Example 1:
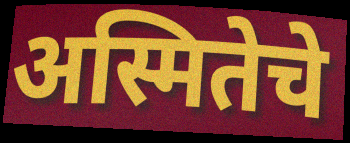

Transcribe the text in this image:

अस्मितेचे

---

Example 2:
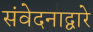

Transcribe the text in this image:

संवेदनाद्वारे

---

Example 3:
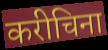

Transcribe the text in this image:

करीचिना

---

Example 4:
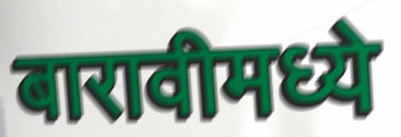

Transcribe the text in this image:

बारावीमध्ये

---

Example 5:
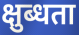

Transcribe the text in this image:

क्षुब्धता